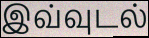
இவ்வுடல்